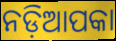
ନଡ଼ିଆପକା